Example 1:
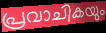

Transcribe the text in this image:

പ്രവാചികയും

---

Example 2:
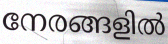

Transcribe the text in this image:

നേരങ്ങളിൽ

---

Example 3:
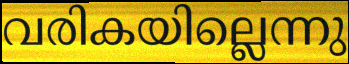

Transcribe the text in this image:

വരികയില്ലെന്നു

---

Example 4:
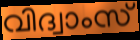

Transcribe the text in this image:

വിദ്വാംസ്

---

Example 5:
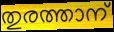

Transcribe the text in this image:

തുരത്താന്